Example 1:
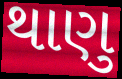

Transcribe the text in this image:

થાણુ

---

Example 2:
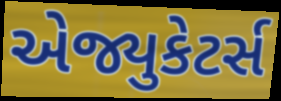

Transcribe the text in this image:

એજ્યુકેટર્સ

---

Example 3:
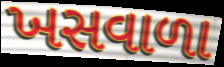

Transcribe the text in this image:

ખસવાળા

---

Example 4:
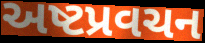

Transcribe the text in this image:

અષ્ટપ્રવચન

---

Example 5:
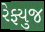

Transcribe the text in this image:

રેફ્યુજ